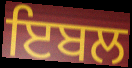
ਇਬਲ